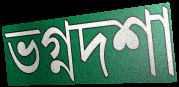
ভগ্নদশা